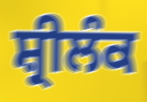
ਸ਼੍ਰੀਲੰਕ